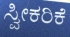
ಸ್ವೀಕರಿಕೆ